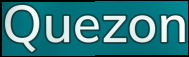
Quezon